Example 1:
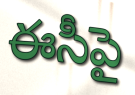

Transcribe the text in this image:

ఈసీపై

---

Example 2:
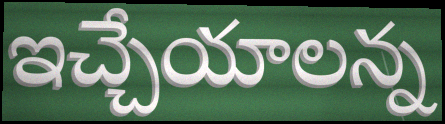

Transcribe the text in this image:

ఇచ్చేయాలన్న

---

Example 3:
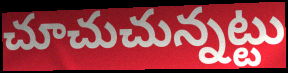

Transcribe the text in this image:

చూచుచున్నట్టు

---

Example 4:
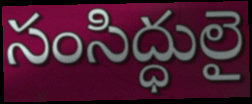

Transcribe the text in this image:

సంసిద్ధులై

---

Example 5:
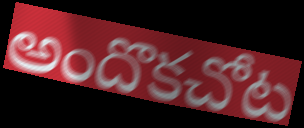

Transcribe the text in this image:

అందొకచోట